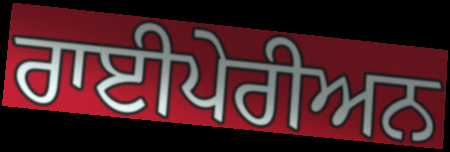
ਰਾਈਪੇਰੀਅਨ